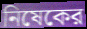
নিষেকের